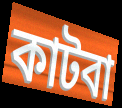
কাটবা